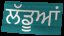
ਲੱਡੂਆਂ